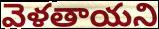
వెళతాయని